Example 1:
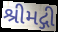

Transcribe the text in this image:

શ્રીમદ્ગી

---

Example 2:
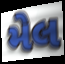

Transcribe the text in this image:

મેલ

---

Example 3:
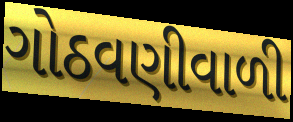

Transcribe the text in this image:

ગોઠવણીવાળી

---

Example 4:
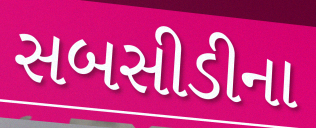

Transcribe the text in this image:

સબસીડીના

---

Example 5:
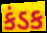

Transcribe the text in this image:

કંડક